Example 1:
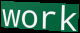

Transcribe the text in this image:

work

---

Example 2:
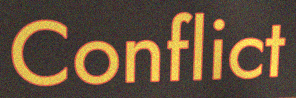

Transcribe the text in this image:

Conflict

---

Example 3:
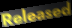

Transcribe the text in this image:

Released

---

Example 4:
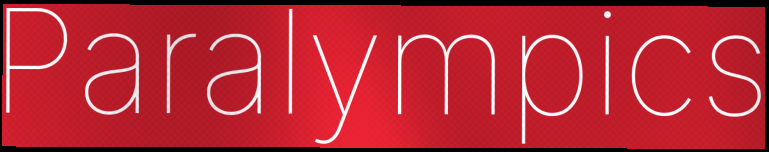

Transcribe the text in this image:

Paralympics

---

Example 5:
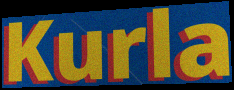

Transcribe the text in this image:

Kurla